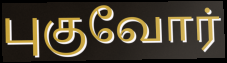
புகுவோர்